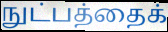
நுட்பத்தைக்